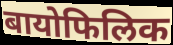
बायोफिलिक